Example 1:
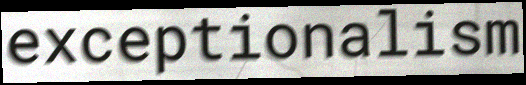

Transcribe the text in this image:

exceptionalism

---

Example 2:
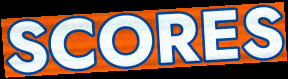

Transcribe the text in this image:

SCORES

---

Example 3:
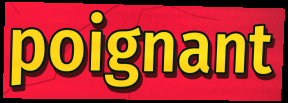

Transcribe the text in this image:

poignant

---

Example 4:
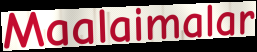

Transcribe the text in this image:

Maalaimalar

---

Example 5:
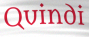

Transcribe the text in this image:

Quindi